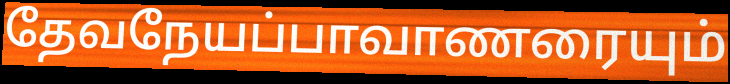
தேவநேயப்பாவாணரையும்